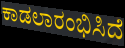
ಕಾಡಲಾರಂಭಿಸಿದೆ